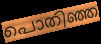
പൊതിഞ്ഞ